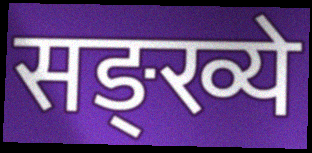
सङ्ख्ये